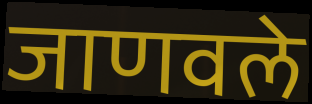
जाणवले